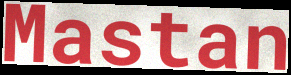
Mastan